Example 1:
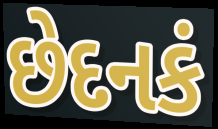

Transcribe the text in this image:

છેદનકં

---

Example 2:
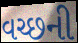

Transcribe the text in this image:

વચ્છની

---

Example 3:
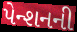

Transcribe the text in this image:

પેન્શનની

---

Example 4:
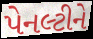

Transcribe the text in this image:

પેનલ્ટીને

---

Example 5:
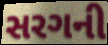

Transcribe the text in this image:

સરગની